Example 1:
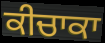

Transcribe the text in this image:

ਕੀਚਾਕਾ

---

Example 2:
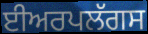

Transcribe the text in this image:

ਈਅਰਪਲੱਗਸ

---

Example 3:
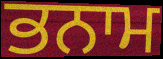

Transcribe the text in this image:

ਭਨਾਮ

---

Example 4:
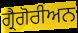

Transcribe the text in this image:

ਗ੍ਰੈਗੋਰੀਅਨ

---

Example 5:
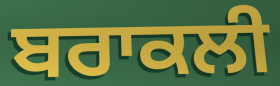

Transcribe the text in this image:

ਬਰਾਕਲੀ